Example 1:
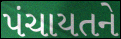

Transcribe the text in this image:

પંચાયતને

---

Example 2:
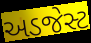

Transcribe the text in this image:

અડજેસ્ટ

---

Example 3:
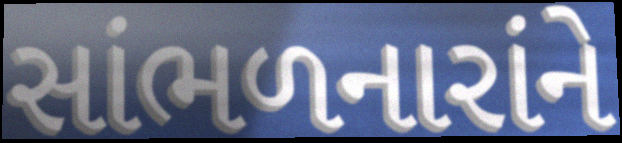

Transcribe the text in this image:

સાંભળનારાંને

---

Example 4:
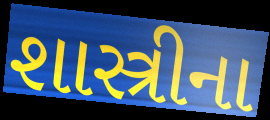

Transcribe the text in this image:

શાસ્ત્રીના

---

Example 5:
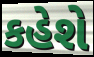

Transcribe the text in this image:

કહેશે